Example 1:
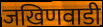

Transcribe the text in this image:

जखिणवाडी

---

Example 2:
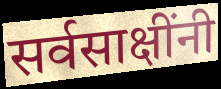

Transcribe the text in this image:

सर्वसाक्षींनी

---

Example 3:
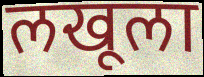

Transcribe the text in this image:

लखूला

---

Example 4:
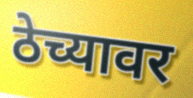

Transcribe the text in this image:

ठेच्यावर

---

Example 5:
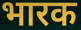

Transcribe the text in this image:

भारक